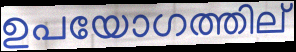
ഉപയോഗത്തില്